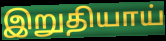
இறுதியாய்